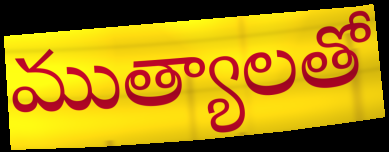
ముత్యాలతో